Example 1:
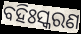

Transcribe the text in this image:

ବହିଃସ୍କରଣ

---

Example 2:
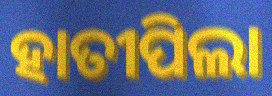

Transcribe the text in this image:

ହାତୀପିଲା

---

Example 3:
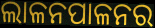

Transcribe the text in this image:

ଲାଳନପାଳନର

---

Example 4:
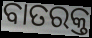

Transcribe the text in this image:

ବାତରକ୍ତ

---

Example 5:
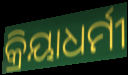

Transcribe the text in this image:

କ୍ରିୟାଧର୍ମୀ